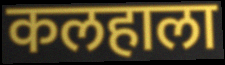
कलहाला